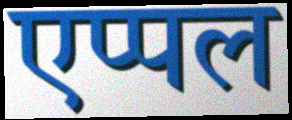
एप्पल